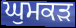
ਘੁਮਕੜ